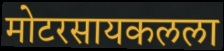
मोटरसायकलला